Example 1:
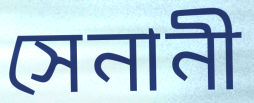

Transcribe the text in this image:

সেনানী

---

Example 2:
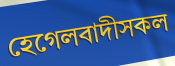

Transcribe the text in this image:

হেগেলবাদীসকল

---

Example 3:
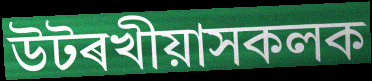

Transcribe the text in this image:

উটৰখীয়াসকলক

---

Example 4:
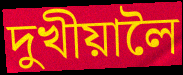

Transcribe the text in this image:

দুখীয়ালৈ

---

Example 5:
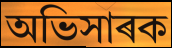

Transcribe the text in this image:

অভিসাৰক